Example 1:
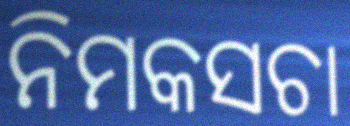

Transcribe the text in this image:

ନିମକସଚା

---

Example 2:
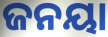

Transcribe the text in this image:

ଜନୟା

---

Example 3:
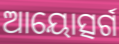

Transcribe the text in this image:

ଆୟୋତ୍ସର୍ଗ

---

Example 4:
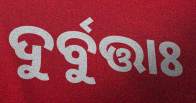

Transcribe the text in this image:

ଦୁର୍ବୁତ୍ତାଃ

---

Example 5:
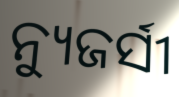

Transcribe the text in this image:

ନ୍ୟୁଜର୍ସୀ